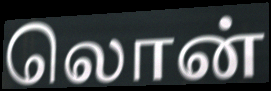
லொன்